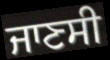
ਜਾਣਸੀ